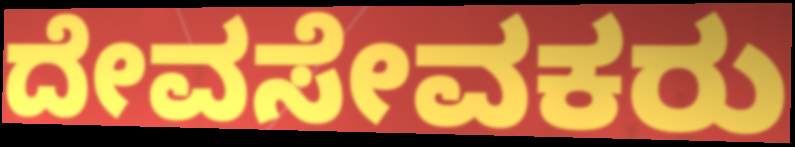
ದೇವಸೇವಕರು